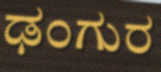
ಢಂಗುರ